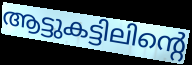
ആട്ടുകട്ടിലിന്റെ